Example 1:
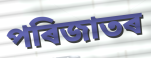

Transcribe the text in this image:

পৰিজাতৰ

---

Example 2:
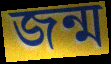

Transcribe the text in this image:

জন্ম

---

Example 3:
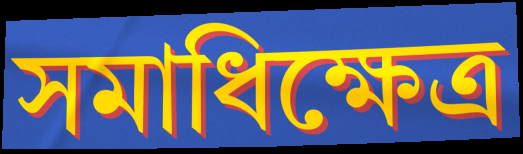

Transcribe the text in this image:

সমাধিক্ষেত্ৰ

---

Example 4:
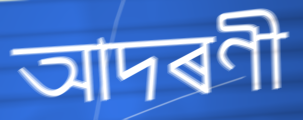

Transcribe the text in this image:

আদৰণী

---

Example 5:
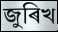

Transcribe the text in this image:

জুৰিখ